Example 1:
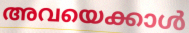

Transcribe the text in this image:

അവയെക്കാൾ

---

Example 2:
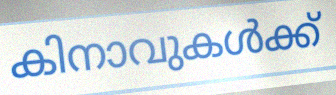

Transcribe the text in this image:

കിനാവുകൾക്ക്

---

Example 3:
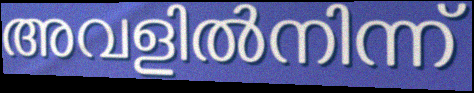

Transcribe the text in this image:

അവളിൽനിന്ന്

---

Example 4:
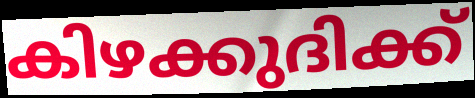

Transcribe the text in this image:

കിഴക്കുദിക്ക്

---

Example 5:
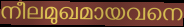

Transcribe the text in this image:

നീലമുഖമായവനെ